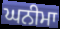
ਘਨੀਮਾ